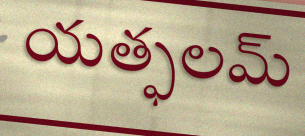
యత్ఫలమ్